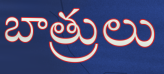
బాత్రులు